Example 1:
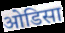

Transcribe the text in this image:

ओडिसा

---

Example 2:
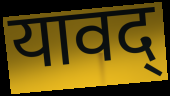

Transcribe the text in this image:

यावद्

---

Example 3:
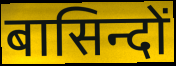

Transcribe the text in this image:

बासिन्दों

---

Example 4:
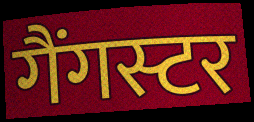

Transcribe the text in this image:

गैंगस्‍टर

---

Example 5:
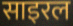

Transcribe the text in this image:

साइरल